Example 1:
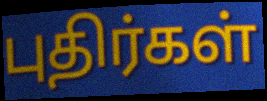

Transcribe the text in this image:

புதிர்கள்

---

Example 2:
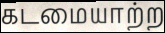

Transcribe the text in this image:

கடமையாற்ற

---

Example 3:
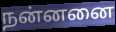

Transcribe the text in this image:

நன்னனை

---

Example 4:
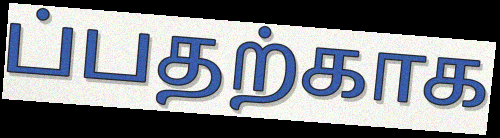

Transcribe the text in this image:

ப்பதற்காக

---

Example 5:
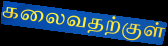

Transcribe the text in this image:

கலைவதற்குள்